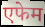
एफेम